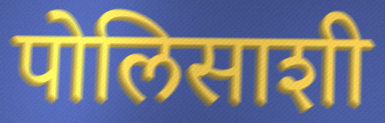
पोलिसाशी